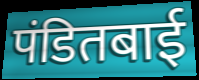
पंडितबाई